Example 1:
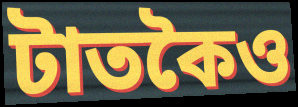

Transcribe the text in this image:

টাতকৈও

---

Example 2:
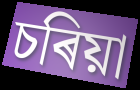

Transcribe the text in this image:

চৰিয়া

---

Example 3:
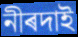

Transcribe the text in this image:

নীৰদাই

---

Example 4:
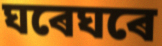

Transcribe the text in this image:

ঘৰেঘৰে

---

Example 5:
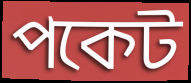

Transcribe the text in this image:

পকেট